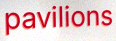
pavilions